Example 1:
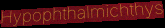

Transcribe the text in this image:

Hypophthalmichthys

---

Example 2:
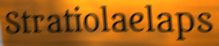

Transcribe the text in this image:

Stratiolaelaps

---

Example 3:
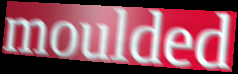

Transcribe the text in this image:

moulded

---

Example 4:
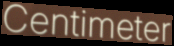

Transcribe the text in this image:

Centimeter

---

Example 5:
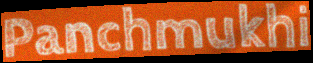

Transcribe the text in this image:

Panchmukhi